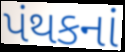
પંથકનાં